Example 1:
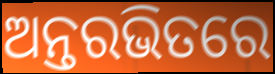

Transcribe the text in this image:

ଅନ୍ତରଭିତରେ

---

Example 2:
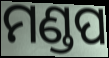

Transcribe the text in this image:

ମଣ୍ଡପ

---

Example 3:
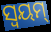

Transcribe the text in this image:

ସ୍ୱୟମ୍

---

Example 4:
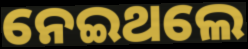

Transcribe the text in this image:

ନେଇଥଲେ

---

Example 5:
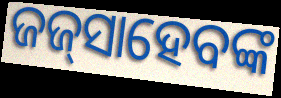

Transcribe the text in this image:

ଜଜ୍‍ସାହେବଙ୍କ